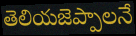
తెలియజెప్పాలనే